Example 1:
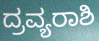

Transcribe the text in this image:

ದ್ರವ್ಯರಾಶಿ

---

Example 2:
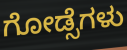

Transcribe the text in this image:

ಗೋಡ್ಸೆಗಳು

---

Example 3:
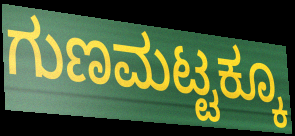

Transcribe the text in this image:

ಗುಣಮಟ್ಟಕ್ಕೂ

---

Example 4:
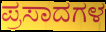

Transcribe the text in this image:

ಪ್ರಸಾದಗಳ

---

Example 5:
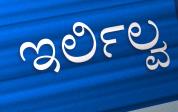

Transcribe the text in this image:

ಇರ್ಲಿಲ್ವ